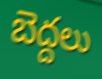
బెద్దలు